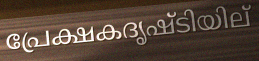
പ്രേക്ഷകദൃഷ്ടിയില്